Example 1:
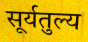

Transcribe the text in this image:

सूर्यतुल्य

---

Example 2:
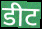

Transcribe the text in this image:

डीट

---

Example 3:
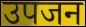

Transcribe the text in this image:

उपजन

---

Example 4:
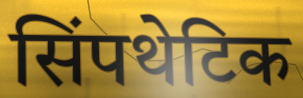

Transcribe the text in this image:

सिंपथेटिक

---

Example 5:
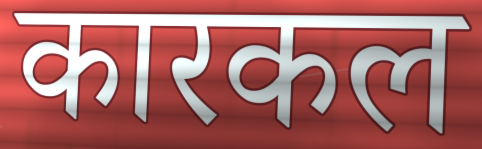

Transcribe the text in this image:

कारकल